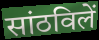
सांठविलें